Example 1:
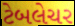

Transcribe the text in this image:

ટેબલેચર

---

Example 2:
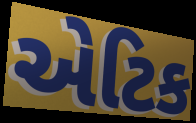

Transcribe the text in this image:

એટિક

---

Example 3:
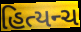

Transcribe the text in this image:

હિત્યન્ચ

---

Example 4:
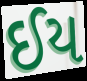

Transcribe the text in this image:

ઈય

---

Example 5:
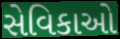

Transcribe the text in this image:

સેવિકાઓ